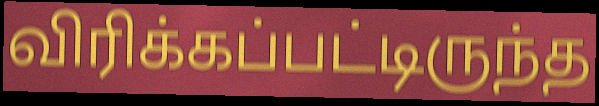
விரிக்கப்பட்டிருந்த